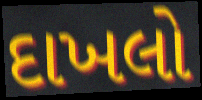
દાખલો